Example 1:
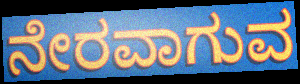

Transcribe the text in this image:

ನೇರವಾಗುವ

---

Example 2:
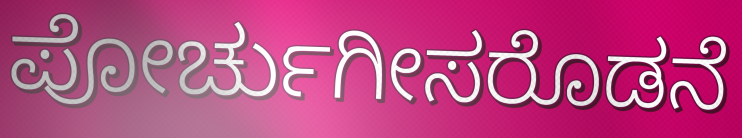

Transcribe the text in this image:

ಪೋರ್ಚುಗೀಸರೊಡನೆ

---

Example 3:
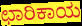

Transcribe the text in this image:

ಛಾರಿಕಾಯ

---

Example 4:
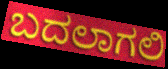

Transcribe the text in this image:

ಬದಲಾಗಲಿ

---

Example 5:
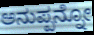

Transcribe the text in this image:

ಅನುಪ್ಪನ್ನೋ